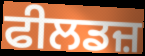
ਫੀਲਡਜ਼